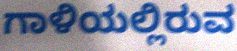
ಗಾಳಿಯಲ್ಲಿರುವ